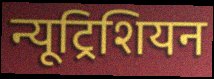
न्यूट्रिशियन